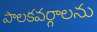
పాలకవర్గాలను